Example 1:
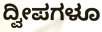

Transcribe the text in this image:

ದ್ವೀಪಗಳೂ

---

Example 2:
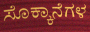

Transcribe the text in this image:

ಸೊಕ್ಕಾನೆಗಳ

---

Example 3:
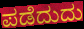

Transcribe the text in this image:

ಪಡೆದುದು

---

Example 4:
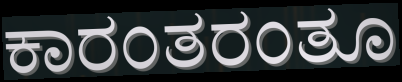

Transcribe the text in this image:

ಕಾರಂತರಂತೂ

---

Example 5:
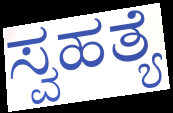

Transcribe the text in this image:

ಸ್ವಹತ್ಯೆ